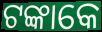
ଟଙ୍କାକେ